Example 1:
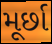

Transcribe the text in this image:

મૂર્છા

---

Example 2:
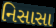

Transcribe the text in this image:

નિસાસા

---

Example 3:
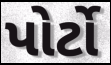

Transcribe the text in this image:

પોર્ટો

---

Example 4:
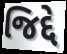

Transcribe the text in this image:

જિદ્દે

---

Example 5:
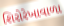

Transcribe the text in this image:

શિરોરેખાવાળા